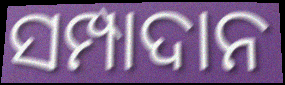
ସମ୍ପାଦାନ